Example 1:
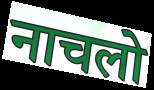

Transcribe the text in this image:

नाचलो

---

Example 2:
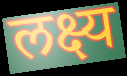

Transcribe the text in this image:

लक्ष्य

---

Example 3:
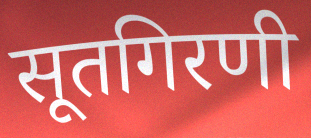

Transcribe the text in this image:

सूतगिरणी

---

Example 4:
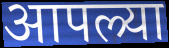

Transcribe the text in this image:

आपल्या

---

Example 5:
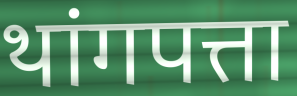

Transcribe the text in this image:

थांगपत्ता